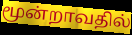
மூன்றாவதில்